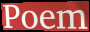
Poem